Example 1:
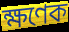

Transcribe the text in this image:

ক্ষণেক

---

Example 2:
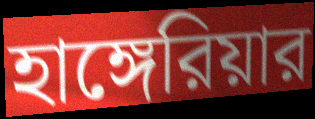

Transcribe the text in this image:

হাঙ্গেরিয়ার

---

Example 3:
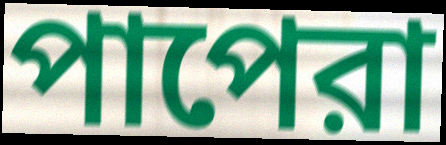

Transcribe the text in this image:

পাপেরা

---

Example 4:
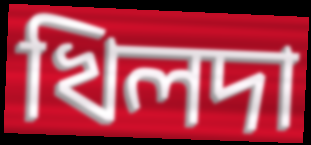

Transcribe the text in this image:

খিলদা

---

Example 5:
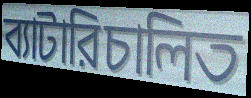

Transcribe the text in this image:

ব্যাটারিচালিত